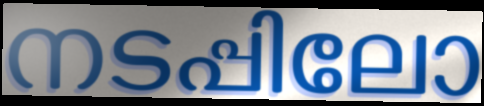
നടപ്പിലോ